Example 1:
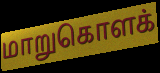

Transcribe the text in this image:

மாறுகொளக்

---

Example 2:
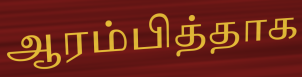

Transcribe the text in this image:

ஆரம்பித்தாக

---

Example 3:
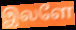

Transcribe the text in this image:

இலளே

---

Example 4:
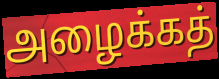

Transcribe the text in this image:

அழைக்கத்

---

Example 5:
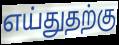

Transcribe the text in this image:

எய்துதற்கு